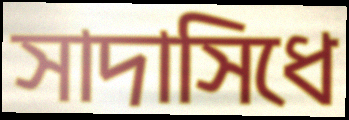
সাদাসিধে